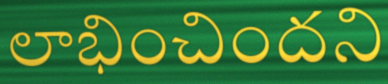
లాభించిందని